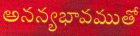
అనన్యభావముతో